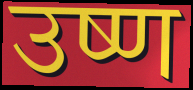
उष्ण